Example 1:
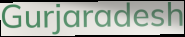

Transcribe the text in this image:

Gurjaradesh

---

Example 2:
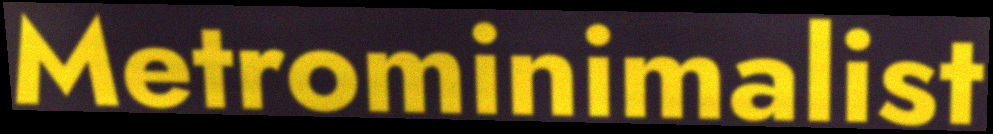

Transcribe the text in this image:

Metrominimalist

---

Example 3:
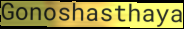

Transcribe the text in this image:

Gonoshasthaya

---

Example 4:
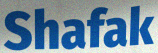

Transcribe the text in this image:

Shafak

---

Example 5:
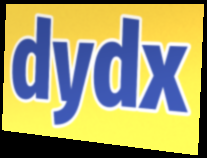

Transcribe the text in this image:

dydx